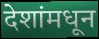
देशांमधून